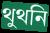
থুথনি